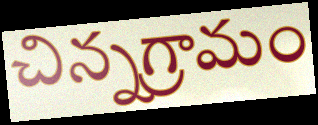
చిన్నగ్రామం